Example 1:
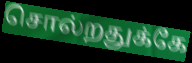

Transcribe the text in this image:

சொல்றதுக்கே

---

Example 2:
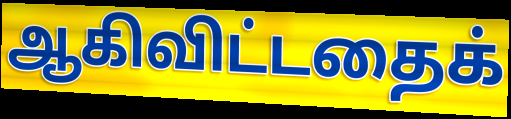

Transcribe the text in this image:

ஆகிவிட்டதைக்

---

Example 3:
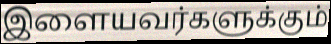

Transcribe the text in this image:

இளையவர்களுக்கும்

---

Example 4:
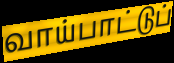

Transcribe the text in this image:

வாய்பாட்டுப்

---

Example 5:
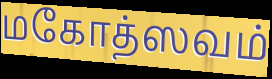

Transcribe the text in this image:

மகோத்ஸவம்